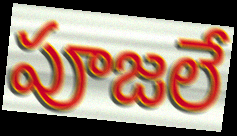
పూజలే